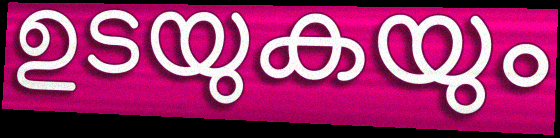
ഉടയുകയും